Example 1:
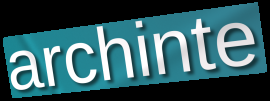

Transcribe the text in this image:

archinte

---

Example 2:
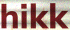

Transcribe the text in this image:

hikk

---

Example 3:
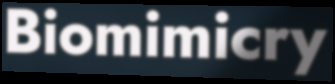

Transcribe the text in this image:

Biomimicry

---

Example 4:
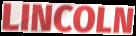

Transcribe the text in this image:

LINCOLN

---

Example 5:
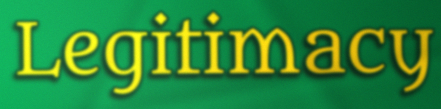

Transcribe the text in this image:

Legitimacy